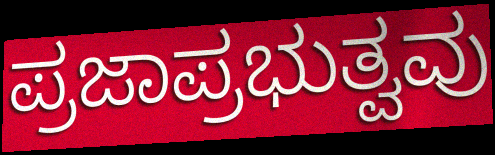
ಪ್ರಜಾಪ್ರಭುತ್ವವು